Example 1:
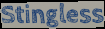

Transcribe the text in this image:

Stingless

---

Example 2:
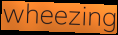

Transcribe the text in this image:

wheezing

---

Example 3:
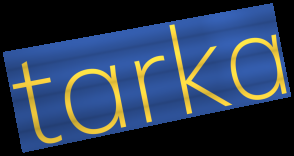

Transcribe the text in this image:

tarka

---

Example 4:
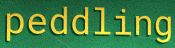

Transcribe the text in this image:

peddling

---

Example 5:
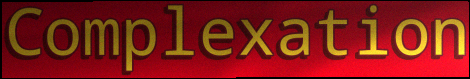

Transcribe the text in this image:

Complexation